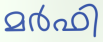
മർഫി